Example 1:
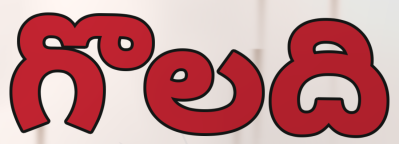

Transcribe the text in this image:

గొలది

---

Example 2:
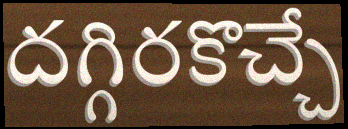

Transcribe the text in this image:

దగ్గిరకొచ్చే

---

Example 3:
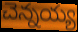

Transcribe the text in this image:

చెన్నయ్య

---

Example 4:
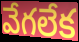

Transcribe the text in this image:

వేగలేక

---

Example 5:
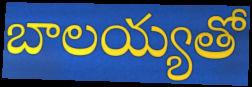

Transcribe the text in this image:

బాలయ్యతో